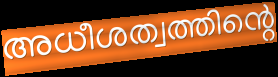
അധീശത്വത്തിന്റെ